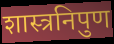
शास्त्रनिपुण